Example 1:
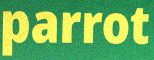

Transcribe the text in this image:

parrot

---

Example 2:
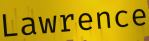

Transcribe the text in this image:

Lawrence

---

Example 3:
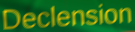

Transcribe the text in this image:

Declension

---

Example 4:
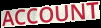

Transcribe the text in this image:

ACCOUNT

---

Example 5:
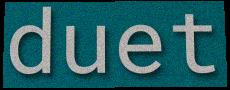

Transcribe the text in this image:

duet